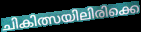
ചികിത്സയിലിരിക്കെ